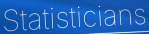
Statisticians